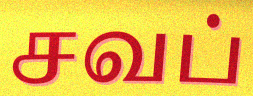
சவப்